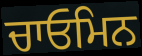
ਚਾਓਮਿਨ